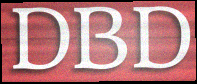
DBD